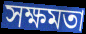
সক্ষমতা